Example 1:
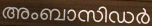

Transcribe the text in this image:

അംബാസിഡർ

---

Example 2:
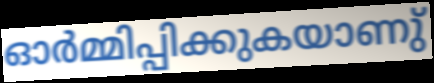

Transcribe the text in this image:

ഓർമ്മിപ്പിക്കുകയാണു്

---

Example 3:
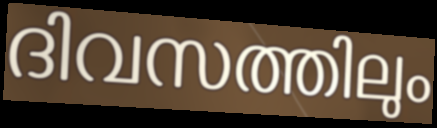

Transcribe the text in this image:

ദിവസത്തിലും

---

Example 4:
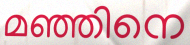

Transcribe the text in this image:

മഞ്ഞിനെ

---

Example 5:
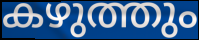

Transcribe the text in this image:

കഴുത്തും